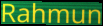
Rahmun